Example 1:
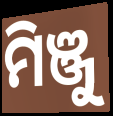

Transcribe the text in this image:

ମିଞ୍ଜୁ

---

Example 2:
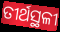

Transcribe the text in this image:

ତୀର୍ଥସ୍ଥଳୀ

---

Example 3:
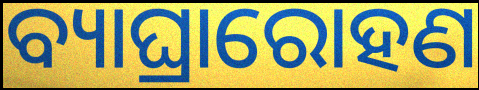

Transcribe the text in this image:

ବ୍ୟାଘ୍ରାରୋହଣ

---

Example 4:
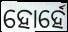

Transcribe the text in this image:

ହୋର୍ହେ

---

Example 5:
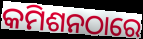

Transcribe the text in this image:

କମିଶନଠାରେ